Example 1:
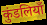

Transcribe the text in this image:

कुंडलियाँ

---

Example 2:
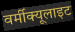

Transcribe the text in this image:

वर्मीक्यूलाइट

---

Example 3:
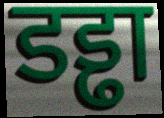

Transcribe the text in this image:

डड्ढा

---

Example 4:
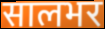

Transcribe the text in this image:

सालभर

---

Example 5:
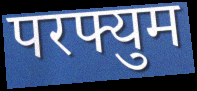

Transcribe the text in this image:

परफ्युम